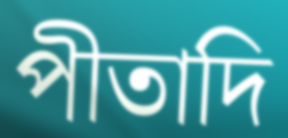
পীতাদি